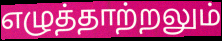
எழுத்தாற்றலும்